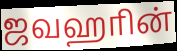
ஜவஹரின்